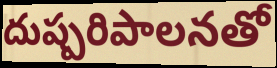
దుష్పరిపాలనతో